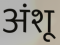
अंशू